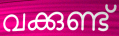
വക്കുണ്ട്